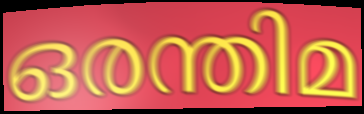
ഒരന്തിമ